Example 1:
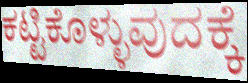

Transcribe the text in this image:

ಕಟ್ಟಿಕೊಳ್ಳುವುದಕ್ಕೆ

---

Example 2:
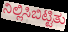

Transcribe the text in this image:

ನಿಲ್ಲಿಸಿಬಿಟ್ಟಿತು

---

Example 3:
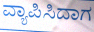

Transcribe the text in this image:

ವ್ಯಾಪಿಸಿದಾಗ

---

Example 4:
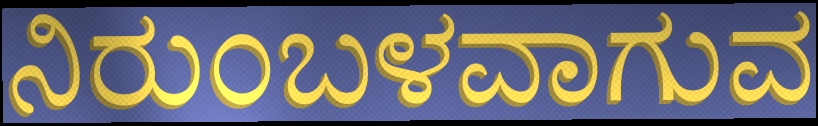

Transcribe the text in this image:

ನಿರುಂಬಳವಾಗುವ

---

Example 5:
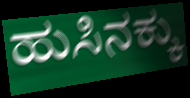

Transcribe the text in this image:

ಹುಸಿನಕ್ಕು